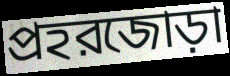
প্রহরজোড়া